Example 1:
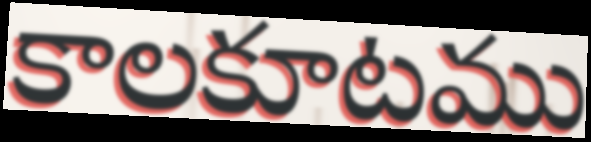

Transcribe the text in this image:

కాలకూటము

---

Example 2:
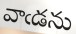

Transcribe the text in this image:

వాఁడను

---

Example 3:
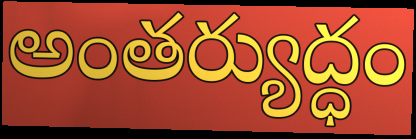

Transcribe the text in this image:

అంతర్యుద్ధం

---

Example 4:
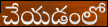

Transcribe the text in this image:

చేయడంలో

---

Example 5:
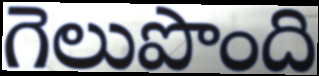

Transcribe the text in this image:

గెలుపొంది